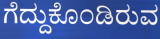
ಗೆದ್ದುಕೊಂಡಿರುವ